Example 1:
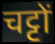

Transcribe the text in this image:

चट्टों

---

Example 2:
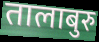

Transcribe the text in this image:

तालाबुरु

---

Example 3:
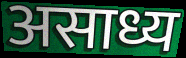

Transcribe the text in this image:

असाध्य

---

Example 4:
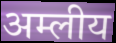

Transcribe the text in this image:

अम्लीय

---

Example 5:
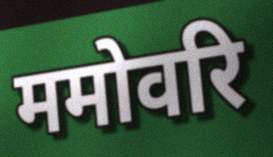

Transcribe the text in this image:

ममोवरि